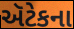
ઍટેકના